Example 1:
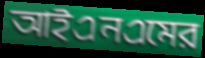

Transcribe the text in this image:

আইএনএমের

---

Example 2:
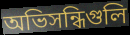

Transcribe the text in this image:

অভিসন্ধিগুলি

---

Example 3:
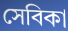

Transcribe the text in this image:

সেবিকা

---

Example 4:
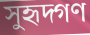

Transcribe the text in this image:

সুহৃদ্গণ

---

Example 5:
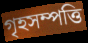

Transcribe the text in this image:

গৃহসম্পত্তি